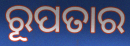
ରୂପତାର